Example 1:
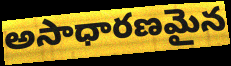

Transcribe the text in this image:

అసాధారణమైన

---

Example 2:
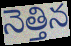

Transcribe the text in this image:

నెత్తిన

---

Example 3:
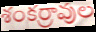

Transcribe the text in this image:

శంకర్రావుల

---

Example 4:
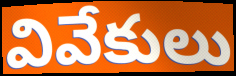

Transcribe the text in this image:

వివేకులు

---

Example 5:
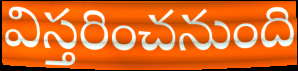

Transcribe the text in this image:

విస్తరించనుంది